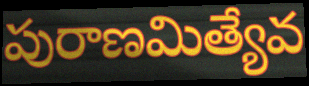
పురాణమిత్యేవ